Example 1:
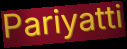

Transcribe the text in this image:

Pariyatti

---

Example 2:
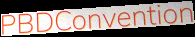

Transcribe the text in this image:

PBDConvention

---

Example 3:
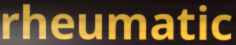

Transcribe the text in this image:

rheumatic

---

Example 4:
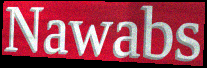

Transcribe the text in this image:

Nawabs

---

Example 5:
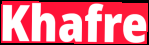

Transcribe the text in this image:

Khafre